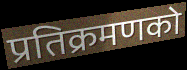
प्रतिक्रमणको